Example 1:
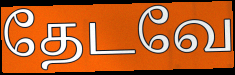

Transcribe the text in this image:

தேடவே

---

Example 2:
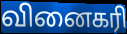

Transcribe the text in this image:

வினைகரி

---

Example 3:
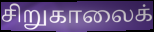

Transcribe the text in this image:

சிறுகாலைக்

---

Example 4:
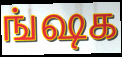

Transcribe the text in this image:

ங்ஷக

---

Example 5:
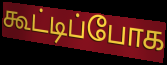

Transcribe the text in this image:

கூட்டிப்போக